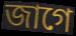
জাগে